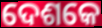
ଦେଶକେ